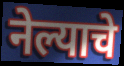
नेल्याचे